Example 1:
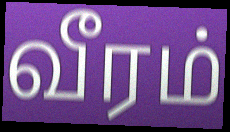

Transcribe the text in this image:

வீரம்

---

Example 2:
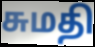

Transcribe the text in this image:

சுமதி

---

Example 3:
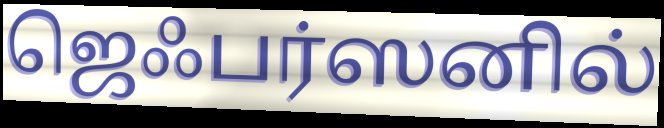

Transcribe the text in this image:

ஜெஃபர்ஸனில்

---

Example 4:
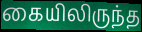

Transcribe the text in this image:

கையிலிருந்த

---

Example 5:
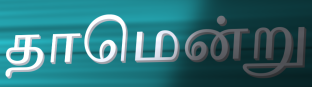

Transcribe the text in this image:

தாமென்று